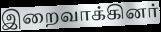
இறைவாக்கினர்